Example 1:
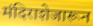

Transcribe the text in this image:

मंदिराशेजारून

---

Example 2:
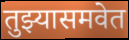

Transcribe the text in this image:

तुझ्यासमवेत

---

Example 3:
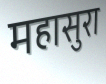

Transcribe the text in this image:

महासुरा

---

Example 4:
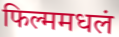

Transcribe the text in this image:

फिल्ममधलं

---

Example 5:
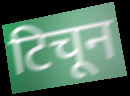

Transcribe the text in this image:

टिचून